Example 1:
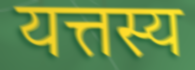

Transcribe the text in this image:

यत्तस्य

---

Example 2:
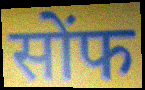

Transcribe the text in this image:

सोंफ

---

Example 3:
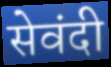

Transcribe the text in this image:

सेवंदी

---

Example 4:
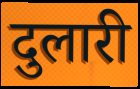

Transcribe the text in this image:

दुलारी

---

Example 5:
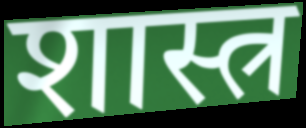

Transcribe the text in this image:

शास्त्र